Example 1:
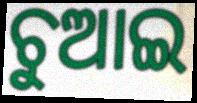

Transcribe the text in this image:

ଚୁଆଇ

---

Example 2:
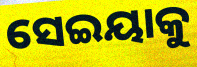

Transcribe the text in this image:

ସେଇୟାକୁ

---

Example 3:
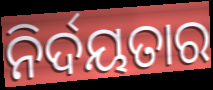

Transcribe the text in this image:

ନିର୍ଦୟତାର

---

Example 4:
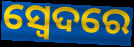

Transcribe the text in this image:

ସ୍ଵେଦରେ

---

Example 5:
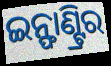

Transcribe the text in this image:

ଇନ୍ଫାଣ୍ଟ୍ରିର